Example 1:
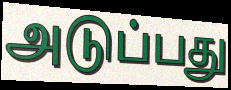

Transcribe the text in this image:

அடுப்பது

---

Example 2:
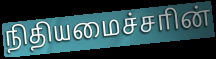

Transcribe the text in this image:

நிதியமைச்சரின்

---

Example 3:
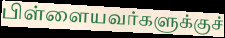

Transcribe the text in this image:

பிள்ளையவர்களுக்குச்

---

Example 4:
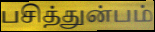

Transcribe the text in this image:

பசித்துன்பம்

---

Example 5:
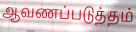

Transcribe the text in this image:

ஆவணப்படுத்தம்